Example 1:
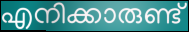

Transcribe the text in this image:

എനിക്കാരുണ്ട്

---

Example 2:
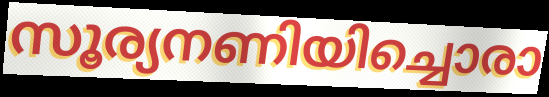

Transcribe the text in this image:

സൂര്യനണിയിച്ചൊരാ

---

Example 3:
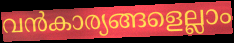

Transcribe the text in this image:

വൻകാര്യങ്ങളെല്ലാം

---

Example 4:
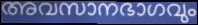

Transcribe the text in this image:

അവസാനഭാഗവും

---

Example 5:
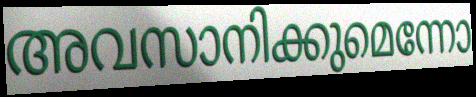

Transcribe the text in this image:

അവസാനിക്കുമെന്നോ